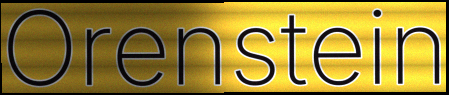
Orenstein